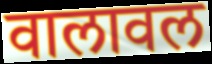
वालावल